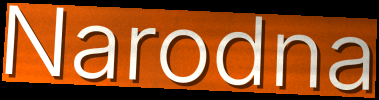
Narodna